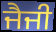
ਜੈਜੀ